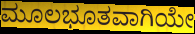
ಮೂಲಭೂತವಾಗಿಯೇ